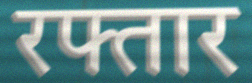
रफ्तार